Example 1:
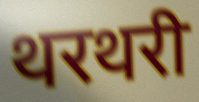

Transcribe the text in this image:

थरथरी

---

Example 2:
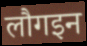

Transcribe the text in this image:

लौगइन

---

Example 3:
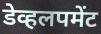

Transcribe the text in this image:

डेव्हलपमेंट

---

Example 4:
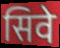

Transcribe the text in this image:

सिवे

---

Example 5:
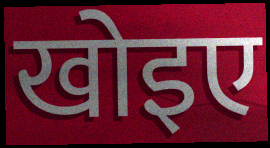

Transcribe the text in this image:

खोइए